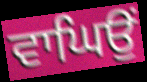
ਵਾਘਿਉਂ